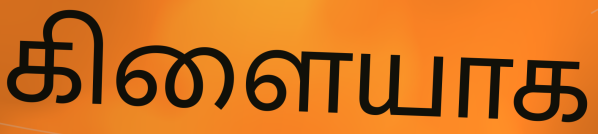
கிளையாக